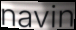
navin